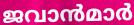
ജവാൻമാർ